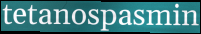
tetanospasmin